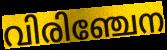
വിരിഞ്ചേന